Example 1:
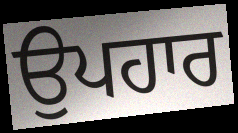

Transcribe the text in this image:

ਉਪਹਾਰ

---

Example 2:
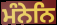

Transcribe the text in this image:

ਮੰਨੇਨਿ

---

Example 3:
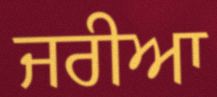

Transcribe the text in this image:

ਜਰੀਆ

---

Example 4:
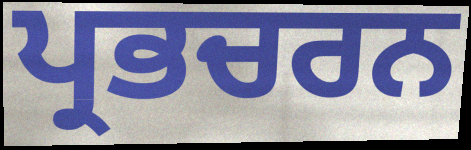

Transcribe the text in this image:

ਪ੍ਰਭਚਰਨ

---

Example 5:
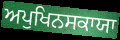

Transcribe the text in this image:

ਅਪੁਖਿਨਸਕਾਯਾ